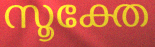
സൂക്തേ